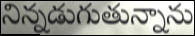
నిన్నడుగుతున్నాను